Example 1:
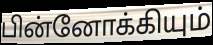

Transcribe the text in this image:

பின்னோக்கியும்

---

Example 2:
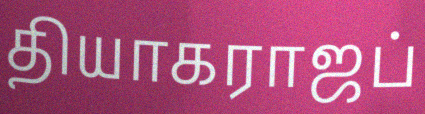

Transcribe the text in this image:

தியாகராஜப்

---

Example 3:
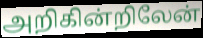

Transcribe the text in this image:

அறிகின்றிலேன்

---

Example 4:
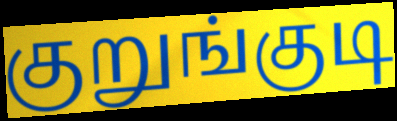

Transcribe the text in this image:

குறுங்குடி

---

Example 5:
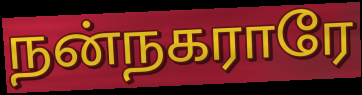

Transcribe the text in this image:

நன்நகராரே